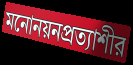
মনোনয়নপ্রত্যাশীর